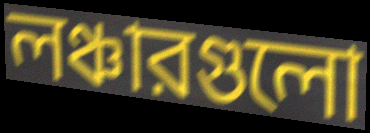
লঞ্চারগুলো